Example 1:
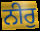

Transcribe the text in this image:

ਨੀਰੁ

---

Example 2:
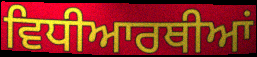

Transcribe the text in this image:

ਵਿਧੀਆਰਥੀਆਂ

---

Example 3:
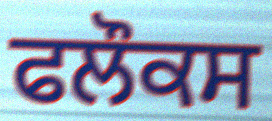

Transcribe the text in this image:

ਫਲੌਕਸ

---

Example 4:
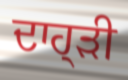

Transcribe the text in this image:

ਦਾਹ੍ੜੀ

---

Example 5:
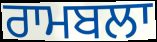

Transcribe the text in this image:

ਰਾਮਬਲਾ